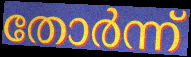
തോർന്ന്